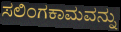
ಸಲಿಂಗಕಾಮವನ್ನು